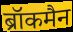
ब्रॉकमैन